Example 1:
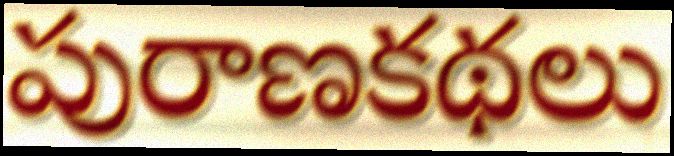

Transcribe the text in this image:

పురాణకథలు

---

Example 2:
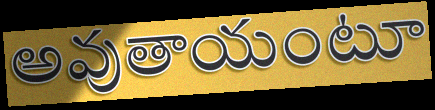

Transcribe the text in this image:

అవుతాయంటూ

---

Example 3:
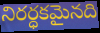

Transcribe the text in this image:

నిరర్ధకమైనది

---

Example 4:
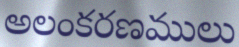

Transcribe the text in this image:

అలంకరణములు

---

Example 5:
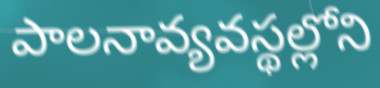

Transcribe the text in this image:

పాలనావ్యవస్థల్లోని